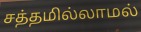
சத்தமில்லாமல்